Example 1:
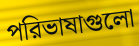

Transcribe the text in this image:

পরিভাষাগুলো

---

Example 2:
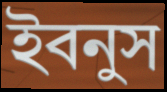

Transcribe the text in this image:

ইবনুস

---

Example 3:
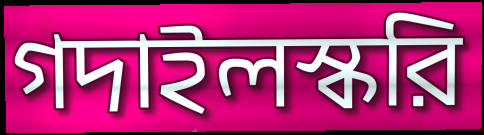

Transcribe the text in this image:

গদাইলস্করি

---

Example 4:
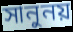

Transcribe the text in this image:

সানুনয়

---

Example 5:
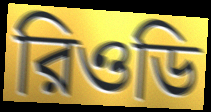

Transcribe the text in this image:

রিওডি